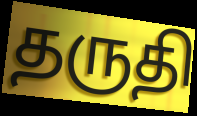
தருதி